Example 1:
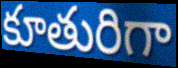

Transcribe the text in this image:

కూతురిగా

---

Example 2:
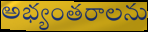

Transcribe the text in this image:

అభ్యంతరాలను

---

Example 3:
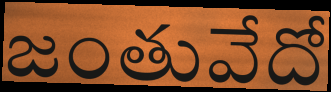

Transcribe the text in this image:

జంతువేదో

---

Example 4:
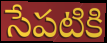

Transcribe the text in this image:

సేపటికి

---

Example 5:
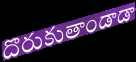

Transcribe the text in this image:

దొరుకుతాండాడా